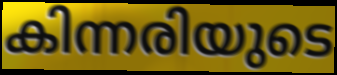
കിന്നരിയുടെ